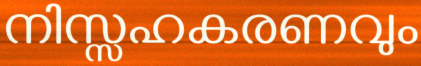
നിസ്സഹകരണവും